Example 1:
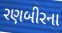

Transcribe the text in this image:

રણબીરના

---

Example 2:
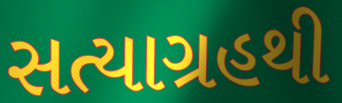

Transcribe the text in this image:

સત્યાગ્રહથી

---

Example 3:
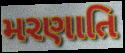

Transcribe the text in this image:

મરણાતિ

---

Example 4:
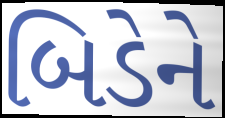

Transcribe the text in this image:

બિડેને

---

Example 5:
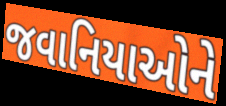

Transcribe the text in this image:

જવાનિયાઓને